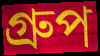
গ্ৰুপ